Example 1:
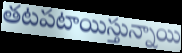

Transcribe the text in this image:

తటపటాయిస్తున్నాయి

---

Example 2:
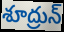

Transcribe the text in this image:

శూద్రున్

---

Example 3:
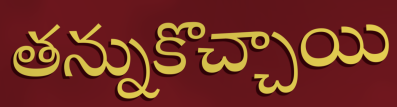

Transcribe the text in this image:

తన్నుకొచ్చాయి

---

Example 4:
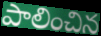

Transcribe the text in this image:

పాలించిన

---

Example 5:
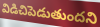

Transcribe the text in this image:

విడిచిపెడుతుందని